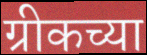
ग्रीकच्या